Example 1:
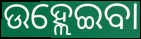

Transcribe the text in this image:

ଉହ୍ଲେଇବା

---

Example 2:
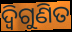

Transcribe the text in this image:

ଦ୍ୱିଗୁଣିତ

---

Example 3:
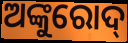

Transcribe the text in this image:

ଅଙ୍କୁରୋଦ୍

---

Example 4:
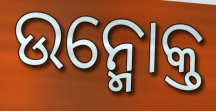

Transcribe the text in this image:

ଉନ୍ମୋକ୍ତ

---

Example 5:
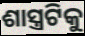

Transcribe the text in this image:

ଶାସ୍ତ୍ରଟିକୁ